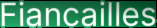
Fiancailles